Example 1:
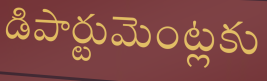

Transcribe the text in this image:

డిపార్టుమెంట్లకు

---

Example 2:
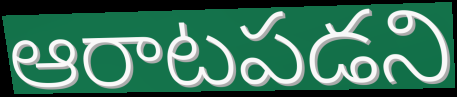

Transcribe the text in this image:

ఆరాటపడని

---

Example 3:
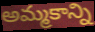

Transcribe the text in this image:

అమ్మకాన్ని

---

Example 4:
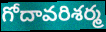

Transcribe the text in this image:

గోదావరిశర్మ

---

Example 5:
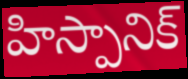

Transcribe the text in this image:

హిస్పానిక్